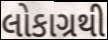
લોકાગ્રથી